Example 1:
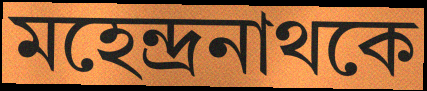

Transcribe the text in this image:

মহেন্দ্রনাথকে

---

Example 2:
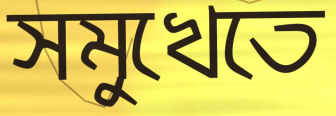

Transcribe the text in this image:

সমুখেতে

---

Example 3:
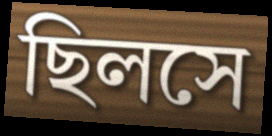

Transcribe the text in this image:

ছিলসে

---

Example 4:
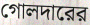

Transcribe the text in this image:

গোলদারের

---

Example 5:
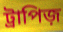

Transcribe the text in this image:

ট্রাপিজ়